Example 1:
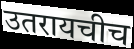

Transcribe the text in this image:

उतरायचीच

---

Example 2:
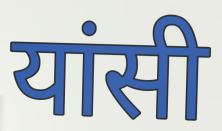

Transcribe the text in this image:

यांसी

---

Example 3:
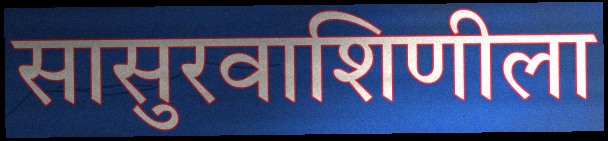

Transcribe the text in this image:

सासुरवाशिणीला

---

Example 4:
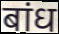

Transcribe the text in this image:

बांध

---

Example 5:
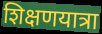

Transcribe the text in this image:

शिक्षणयात्रा